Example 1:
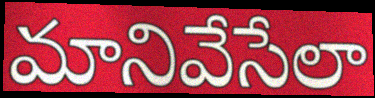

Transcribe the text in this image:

మానివేసేలా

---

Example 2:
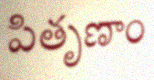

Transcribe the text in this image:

పితృణాం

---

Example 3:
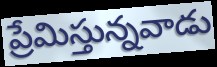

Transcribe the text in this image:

ప్రేమిస్తున్నవాడు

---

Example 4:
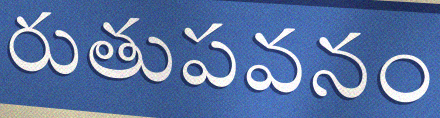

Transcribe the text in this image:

రుతుపవనం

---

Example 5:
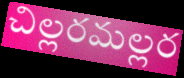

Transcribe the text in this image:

చిల్లరమల్లర